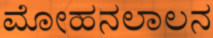
ಮೋಹನಲಾಲನ